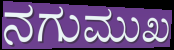
ನಗುಮುಖ